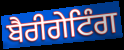
ਬੈਰੀਗੇਟਿੰਗ